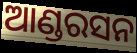
ଆଣ୍ଡରସନ